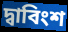
দ্বাবিংশ